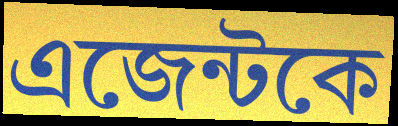
এজেন্টকে